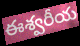
ఈశ్వరీయ